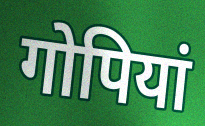
गोपियां